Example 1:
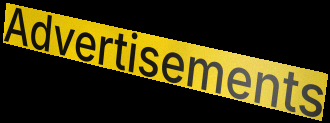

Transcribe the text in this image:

Advertisements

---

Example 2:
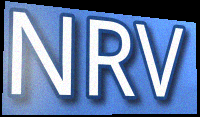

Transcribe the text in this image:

NRV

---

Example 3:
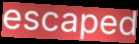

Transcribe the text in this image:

escaped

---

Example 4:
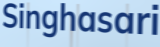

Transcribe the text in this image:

Singhasari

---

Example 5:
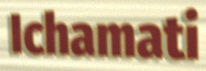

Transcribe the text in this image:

Ichamati